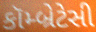
કૉમ્બ્રેટેસી